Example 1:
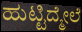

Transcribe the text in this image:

ಹುಟ್ಟಿದ್ಮೇಲೆ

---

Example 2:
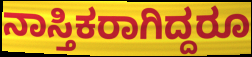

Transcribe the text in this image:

ನಾಸ್ತಿಕರಾಗಿದ್ದರೂ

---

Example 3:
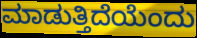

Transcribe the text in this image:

ಮಾಡುತ್ತಿದೆಯೆಂದು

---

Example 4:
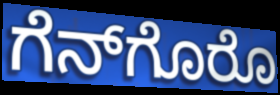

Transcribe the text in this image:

ಗೆನ್‌ಗೊರೊ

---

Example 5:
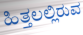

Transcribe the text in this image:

ಹಿತ್ತಲಲ್ಲಿರುವ